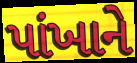
પાંખાને